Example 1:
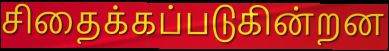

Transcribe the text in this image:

சிதைக்கப்படுகின்றன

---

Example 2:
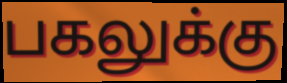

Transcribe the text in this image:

பகலுக்கு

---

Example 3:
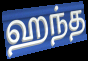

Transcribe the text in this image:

ஹந்த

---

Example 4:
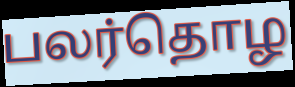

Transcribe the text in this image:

பலர்தொழ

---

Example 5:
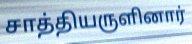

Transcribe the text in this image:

சாத்தியருளினார்